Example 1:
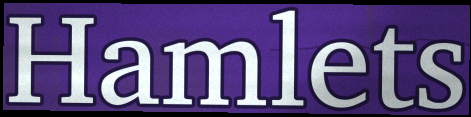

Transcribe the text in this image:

Hamlets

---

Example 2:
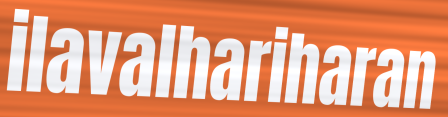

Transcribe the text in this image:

ilavalhariharan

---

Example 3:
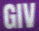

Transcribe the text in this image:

GIV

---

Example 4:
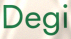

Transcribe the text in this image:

Degi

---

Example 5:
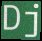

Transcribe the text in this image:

Dj